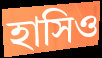
হাসিও